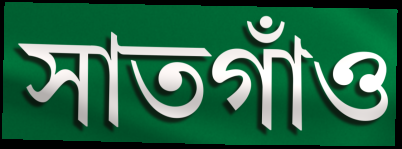
সাতগাঁও